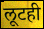
लूटही